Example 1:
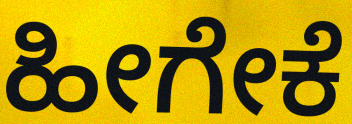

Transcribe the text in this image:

ಹೀಗೇಕೆ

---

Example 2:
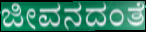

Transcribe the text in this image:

ಜೀವನದಂತೆ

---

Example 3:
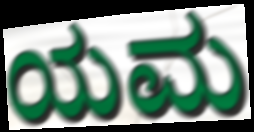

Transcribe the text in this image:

ಯಮ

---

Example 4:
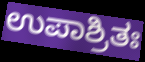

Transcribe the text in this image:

ಉಪಾಶ್ರಿತಃ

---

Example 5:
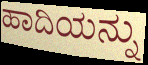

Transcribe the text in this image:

ಹಾದಿಯನ್ನು